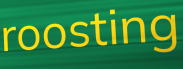
roosting